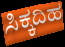
ಸಿಕ್ಕದಿಹ